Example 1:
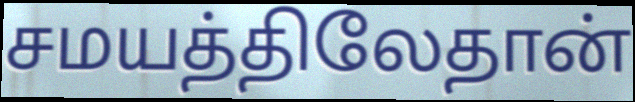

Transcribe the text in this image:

சமயத்திலேதான்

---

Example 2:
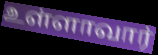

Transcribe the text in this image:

உள்ளாவார்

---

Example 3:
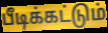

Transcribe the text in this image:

பீடிக்கட்டும்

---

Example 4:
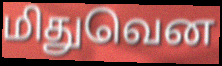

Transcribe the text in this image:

மிதுவென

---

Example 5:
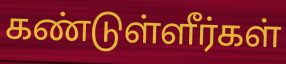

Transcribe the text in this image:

கண்டுள்ளீர்கள்